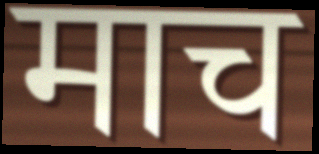
माच